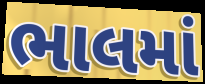
ભાલમાં